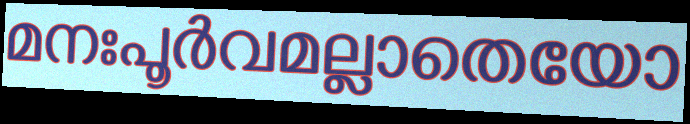
മനഃപൂർവമല്ലാതെയോ